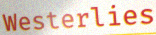
Westerlies